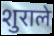
शुराले